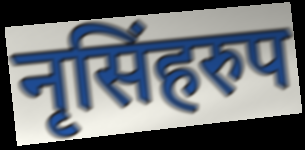
नृसिंहरुप